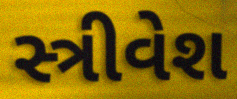
સ્ત્રીવેશ